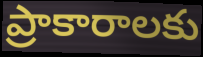
ప్రాకారాలకు